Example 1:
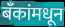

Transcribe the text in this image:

बॅंकांमधून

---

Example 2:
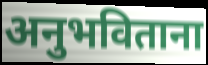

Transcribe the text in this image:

अनुभविताना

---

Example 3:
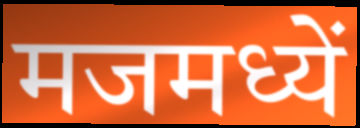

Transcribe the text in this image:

मजमध्यें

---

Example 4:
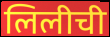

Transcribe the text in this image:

लिलीची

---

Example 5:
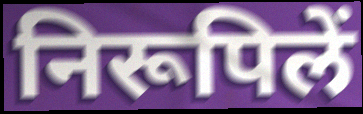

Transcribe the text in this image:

निरूपिलें